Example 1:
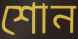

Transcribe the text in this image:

শোন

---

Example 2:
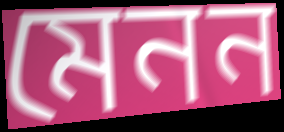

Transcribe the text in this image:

মেনন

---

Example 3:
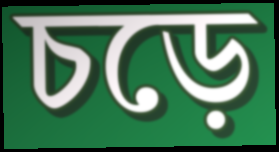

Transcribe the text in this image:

চড়ে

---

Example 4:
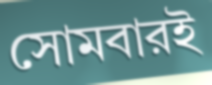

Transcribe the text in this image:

সোমবারই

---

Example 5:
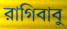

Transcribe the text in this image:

রাগিবাবু